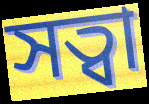
সত্বা